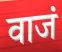
वाजं